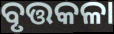
ବୃତ୍ତକଳା